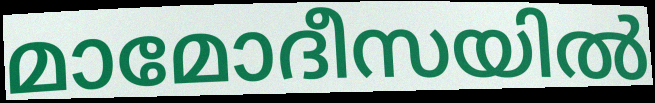
മാമോദീസയിൽ